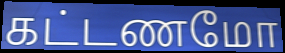
கட்டணமோ